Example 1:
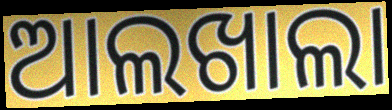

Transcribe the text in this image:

ଆଲଖାଲା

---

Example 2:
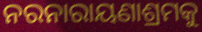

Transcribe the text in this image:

ନରନାରାୟଣାଶ୍ରମକୁ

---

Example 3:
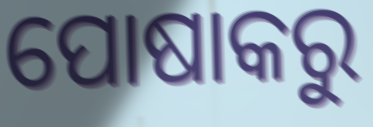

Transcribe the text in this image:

ପୋଷାକରୁ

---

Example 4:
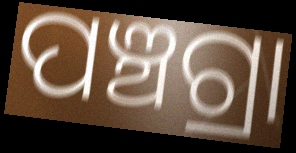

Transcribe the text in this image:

ପଞ୍ଚଗ୍ରା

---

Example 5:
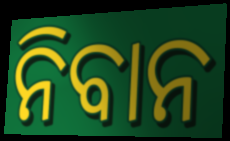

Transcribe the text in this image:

ନିବାନ